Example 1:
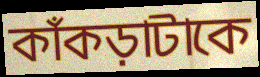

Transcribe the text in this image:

কাঁকড়াটাকে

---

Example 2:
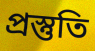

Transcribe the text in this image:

প্রস্তুতি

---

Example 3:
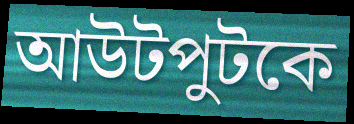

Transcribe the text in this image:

আউটপুটকে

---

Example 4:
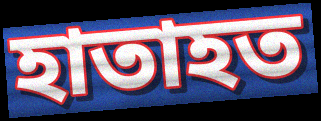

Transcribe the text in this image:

হাতাহত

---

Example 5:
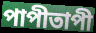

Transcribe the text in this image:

পাপীতাপী